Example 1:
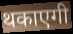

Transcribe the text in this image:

थकाएगी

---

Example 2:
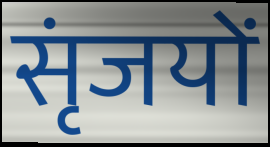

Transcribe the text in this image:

सृंजयों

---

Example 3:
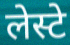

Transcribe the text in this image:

लेस्टे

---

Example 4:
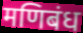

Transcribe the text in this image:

मणिबंध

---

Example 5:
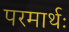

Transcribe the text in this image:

परमार्थः